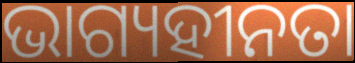
ଭାଗ୍ୟହୀନତା